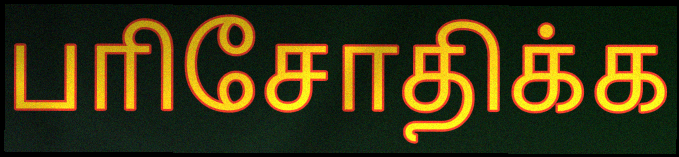
பரிசோதிக்க